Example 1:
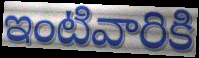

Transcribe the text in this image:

ఇంటివారికి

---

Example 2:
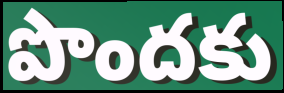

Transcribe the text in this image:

పొందకు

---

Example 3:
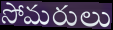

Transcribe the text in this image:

సోమరులు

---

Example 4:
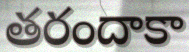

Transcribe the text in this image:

తరందాకా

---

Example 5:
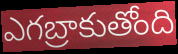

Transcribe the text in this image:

ఎగబ్రాకుతోంది